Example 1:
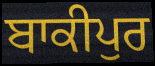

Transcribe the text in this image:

ਬਾਕੀਪੁਰ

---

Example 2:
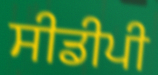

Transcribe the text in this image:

ਸੀਡੀਪੀ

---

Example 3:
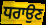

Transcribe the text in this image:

ਧਰਾਉਣ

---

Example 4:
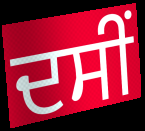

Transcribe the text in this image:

ਦਸੀਂ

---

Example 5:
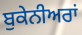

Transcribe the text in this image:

ਬੁਕੇਨੀਅਰਾਂ